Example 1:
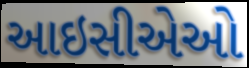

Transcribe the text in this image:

આઇસીએઓ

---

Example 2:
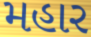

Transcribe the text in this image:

મહાર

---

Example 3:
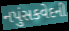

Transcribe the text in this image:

નપુંસકવેદની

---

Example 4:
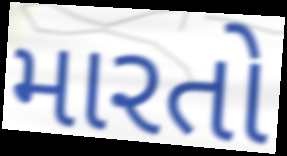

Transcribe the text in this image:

મારતો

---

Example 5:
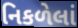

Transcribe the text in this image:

નિકળેલાં